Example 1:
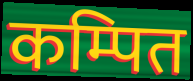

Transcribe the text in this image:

कम्पित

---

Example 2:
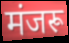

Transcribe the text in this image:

मंजरू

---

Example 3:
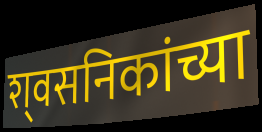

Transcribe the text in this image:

श्वसनिकांच्या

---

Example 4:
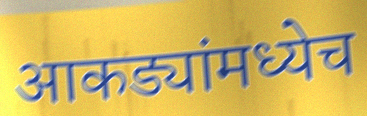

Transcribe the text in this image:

आकड्यांमध्येच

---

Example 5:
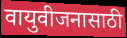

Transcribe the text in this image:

वायुवीजनासाठी